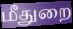
மீதுறை